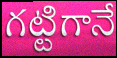
గట్టిగానే